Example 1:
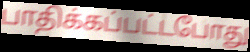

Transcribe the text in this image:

பாதிக்கப்பட்டபோது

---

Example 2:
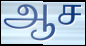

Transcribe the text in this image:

ஆச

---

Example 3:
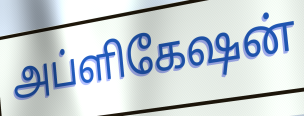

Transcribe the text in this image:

அப்ளிகேஷன்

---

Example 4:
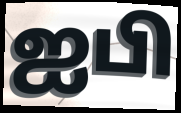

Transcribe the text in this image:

ஐபி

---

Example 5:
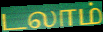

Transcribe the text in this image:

டலாம்